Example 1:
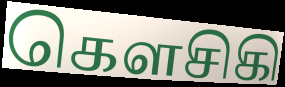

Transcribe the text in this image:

கௌசிகி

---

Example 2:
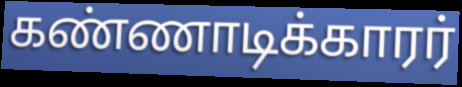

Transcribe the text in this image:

கண்ணாடிக்காரர்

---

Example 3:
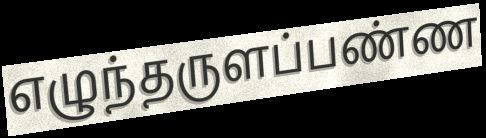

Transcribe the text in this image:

எழுந்தருளப்பண்ண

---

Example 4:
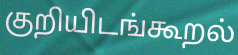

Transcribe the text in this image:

குறியிடங்கூறல்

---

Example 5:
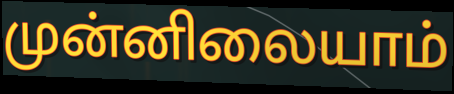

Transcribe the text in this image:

முன்னிலையாம்